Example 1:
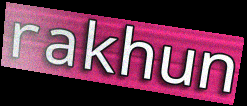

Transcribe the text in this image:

rakhun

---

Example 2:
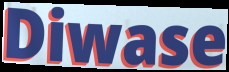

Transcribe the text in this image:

Diwase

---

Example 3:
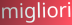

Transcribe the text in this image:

migliori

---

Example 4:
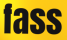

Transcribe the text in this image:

fass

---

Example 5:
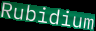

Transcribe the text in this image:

Rubidium